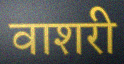
वाशरी